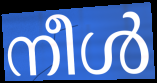
നീൾ